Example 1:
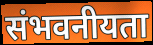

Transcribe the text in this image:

संभवनीयता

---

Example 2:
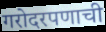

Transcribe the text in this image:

गरोदरपणाची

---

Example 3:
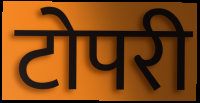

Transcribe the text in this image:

टोपरी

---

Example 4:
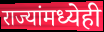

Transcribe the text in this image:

राज्यांमध्येही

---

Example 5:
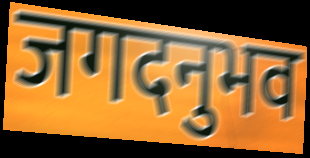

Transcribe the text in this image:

जगदनुभव